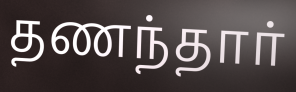
தணந்தார்